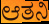
ಆತನಿ